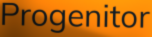
Progenitor